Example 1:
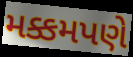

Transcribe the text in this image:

મક્કમપણે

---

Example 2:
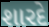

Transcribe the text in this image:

શારદે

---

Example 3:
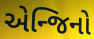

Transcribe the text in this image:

એન્જિનો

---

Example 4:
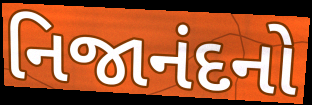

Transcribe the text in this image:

નિજાનંદનો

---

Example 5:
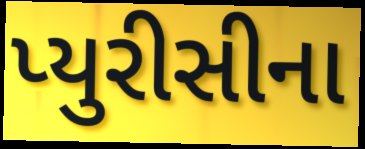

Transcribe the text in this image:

પ્યુરીસીના